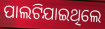
ପାଲଟିଯାଇଥିଲେ